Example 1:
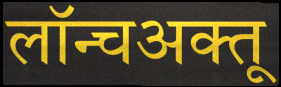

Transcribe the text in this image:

लॉन्चअक्तू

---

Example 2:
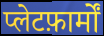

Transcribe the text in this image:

प्लेटफ़ार्मों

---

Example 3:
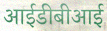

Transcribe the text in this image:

आईडीबीआई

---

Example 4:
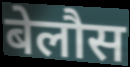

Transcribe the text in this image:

बेलौस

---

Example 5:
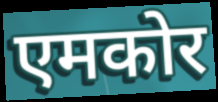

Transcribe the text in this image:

एमकोर